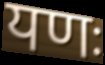
यणः